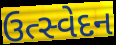
ઉત્સ્વેદન